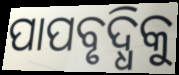
ପାପବୃଦ୍ଧିକୁ